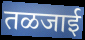
तळजाई